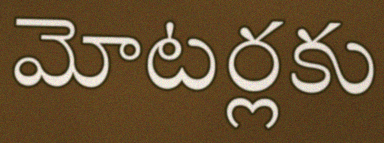
మోటర్లకు